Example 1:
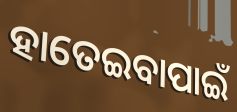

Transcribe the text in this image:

ହାତେଇବାପାଇଁ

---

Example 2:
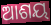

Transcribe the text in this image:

ଆଶୟ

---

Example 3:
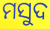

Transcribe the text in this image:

ମସୁଦ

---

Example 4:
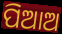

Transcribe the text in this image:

ପିଆଅ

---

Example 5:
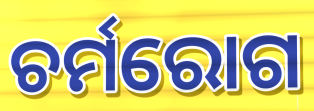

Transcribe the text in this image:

ଚର୍ମରୋଗ